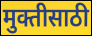
मुक्तीसाठी